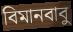
বিমানবাবু